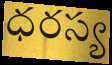
ధరస్య